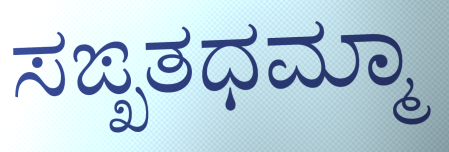
ಸಙ್ಖತಧಮ್ಮಾ